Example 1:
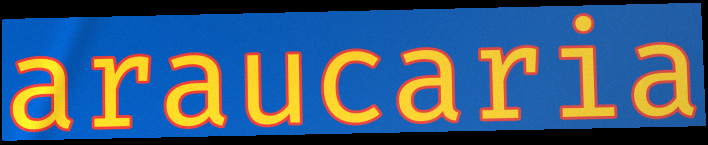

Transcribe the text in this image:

araucaria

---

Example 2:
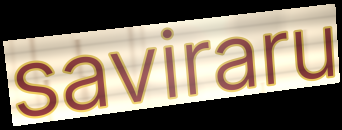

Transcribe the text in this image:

saviraru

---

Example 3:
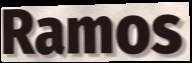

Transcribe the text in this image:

Ramos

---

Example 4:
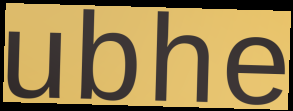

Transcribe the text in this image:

ubhe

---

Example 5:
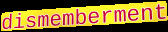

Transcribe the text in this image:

dismemberment